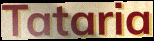
Tataria